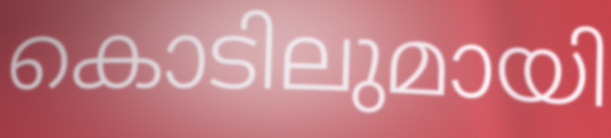
കൊടിലുമായി